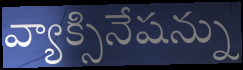
వ్యాక్సినేషన్ను